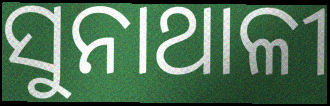
ସୁନାଥାଳୀ